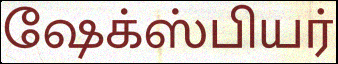
ஷேக்ஸ்பியர்